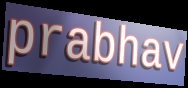
prabhav